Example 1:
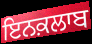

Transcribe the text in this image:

ਇਨਕ਼ਲਾਬ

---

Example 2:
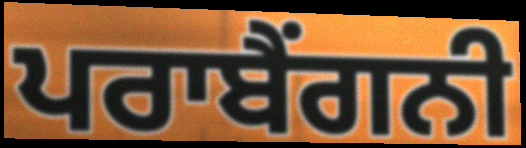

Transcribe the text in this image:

ਪਰਾਬੈਂਗਨੀ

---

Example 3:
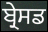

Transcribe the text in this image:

ਬ੍ਰੇਸਡ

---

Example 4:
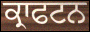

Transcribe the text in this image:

ਕ੍ਰਾਫਟਨ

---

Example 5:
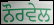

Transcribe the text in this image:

ਨੌਰਵੇਲ